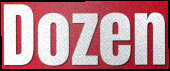
Dozen